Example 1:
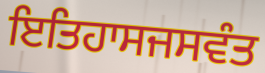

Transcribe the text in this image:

ਇਤਿਹਾਸਜਸਵੰਤ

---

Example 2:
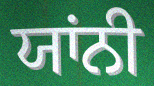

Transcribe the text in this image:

ਯਾਂਨੀ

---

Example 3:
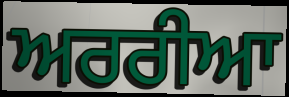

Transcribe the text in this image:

ਅਰਰੀਆ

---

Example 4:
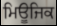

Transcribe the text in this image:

ਮਿਊਜਿਕ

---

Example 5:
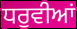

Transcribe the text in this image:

ਧਰੁਵੀਆਂ